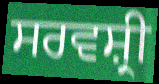
ਸਰਵਸ਼੍ਰੀ